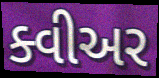
ક્વીઅર